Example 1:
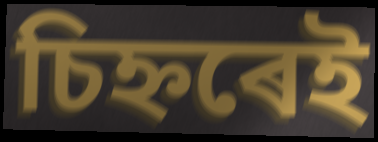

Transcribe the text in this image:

চিহ্নৰেই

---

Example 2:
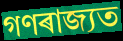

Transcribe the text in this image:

গণৰাজ্যত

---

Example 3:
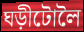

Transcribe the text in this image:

ঘড়ীটোলৈ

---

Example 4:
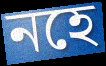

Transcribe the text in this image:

নহে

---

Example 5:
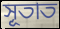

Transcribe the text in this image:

সূতাত